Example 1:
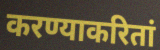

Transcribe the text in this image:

करण्याकरितां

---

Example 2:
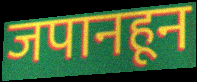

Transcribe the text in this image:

जपानहून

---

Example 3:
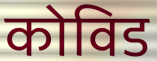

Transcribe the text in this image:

कोविड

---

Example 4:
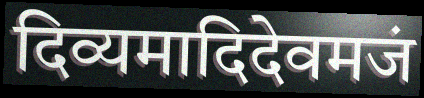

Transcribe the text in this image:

दिव्यमादिदेवमजं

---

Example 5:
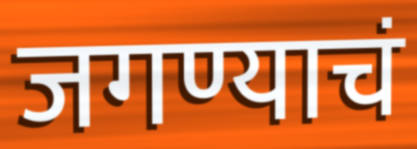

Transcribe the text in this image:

जगण्याचं